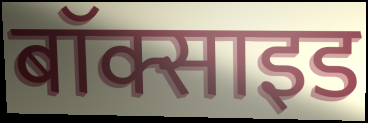
बॉक्साइड